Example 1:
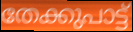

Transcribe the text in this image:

തേക്കുപാട്ട്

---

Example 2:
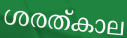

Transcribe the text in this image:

ശരത്കാല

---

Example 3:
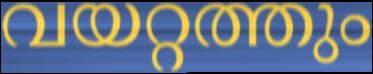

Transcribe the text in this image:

വയറ്റത്തും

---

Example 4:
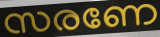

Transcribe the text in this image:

സരണേ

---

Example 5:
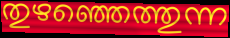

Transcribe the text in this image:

തുഴഞ്ഞെത്തുന്ന